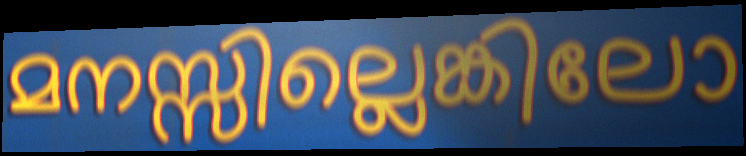
മനസ്സില്ലെങ്കിലോ